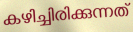
കഴിച്ചിരിക്കുന്നത്